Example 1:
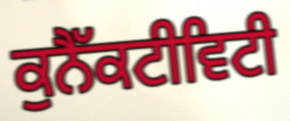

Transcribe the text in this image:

ਕੁਨੈੱਕਟੀਵਿਟੀ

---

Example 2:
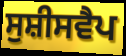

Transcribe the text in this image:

ਸੁਸ਼ੀਸਵੈਪ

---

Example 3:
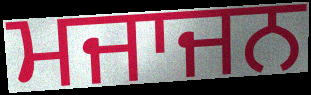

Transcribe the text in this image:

ਮਜਾਜਨ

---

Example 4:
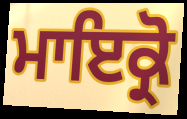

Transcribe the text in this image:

ਮਾਇਕ੍ਰੋ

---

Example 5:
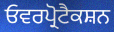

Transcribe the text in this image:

ਓਵਰਪ੍ਰੋਟੈਕਸ਼ਨ